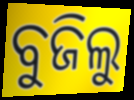
ବୁଜିଲୁ